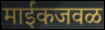
माईकजवळ